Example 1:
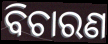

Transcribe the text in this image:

ବିଚାରଣ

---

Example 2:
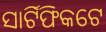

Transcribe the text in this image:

ସାର୍ଟିଫିକଟେ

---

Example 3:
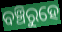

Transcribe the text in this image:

ବଞ୍ଚିରୁହେ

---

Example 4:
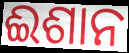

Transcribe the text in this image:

ଈଶାନ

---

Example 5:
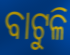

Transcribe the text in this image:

ବାଟୁଳି